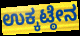
ಉಕ್ಕಟ್ಠೇನ